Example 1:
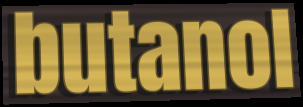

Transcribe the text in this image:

butanol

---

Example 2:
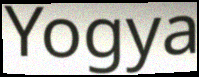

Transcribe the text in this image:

Yogya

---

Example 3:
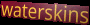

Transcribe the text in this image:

waterskins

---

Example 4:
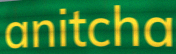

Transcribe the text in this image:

anitcha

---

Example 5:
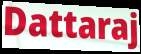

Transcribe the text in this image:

Dattaraj